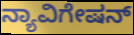
ನ್ಯಾವಿಗೇಷನ್